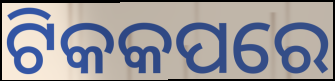
ଟିକକପରେ